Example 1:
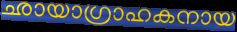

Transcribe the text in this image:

ഛായാഗ്രാഹകനായ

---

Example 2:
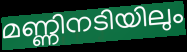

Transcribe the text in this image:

മണ്ണിനടിയിലും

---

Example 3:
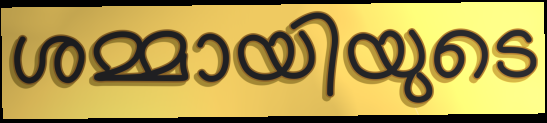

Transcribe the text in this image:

ശമ്മായിയുടെ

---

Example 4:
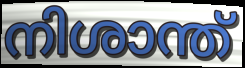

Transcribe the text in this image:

നിശാന്ത്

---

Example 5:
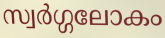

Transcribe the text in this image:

സ്വർഗ്ഗലോകം